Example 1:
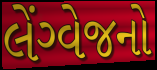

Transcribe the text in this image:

લેંગ્વેજનો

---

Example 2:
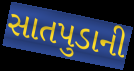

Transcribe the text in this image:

સાતપુડાની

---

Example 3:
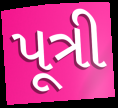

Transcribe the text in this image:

પૂત્રી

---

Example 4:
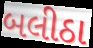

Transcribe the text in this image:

બલીઠા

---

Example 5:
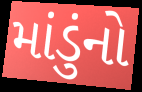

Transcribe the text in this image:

માંડુંનો